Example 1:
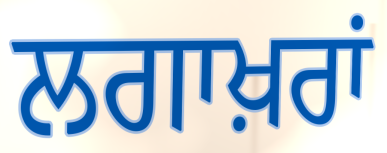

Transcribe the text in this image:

ਲਗਾਖ਼ਰਾਂ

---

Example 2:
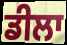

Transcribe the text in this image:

ਡੀਲਾ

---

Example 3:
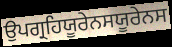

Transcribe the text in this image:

ਉਪਗ੍ਰਹਿਯੂਰੇਨਸਯੂਰੇਨਸ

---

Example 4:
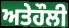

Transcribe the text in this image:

ਅਤੇਹੌਲੀ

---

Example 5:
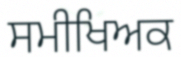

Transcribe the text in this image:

ਸਮੀਖਿਅਕ